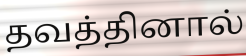
தவத்தினால்